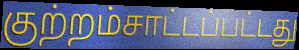
குற்றம்சாட்டப்பட்டது